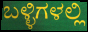
ಬಳ್ಳಿಗಳಲ್ಲಿ